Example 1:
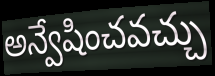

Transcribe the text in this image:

అన్వేషించవచ్చు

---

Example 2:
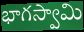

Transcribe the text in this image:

భాగస్వామి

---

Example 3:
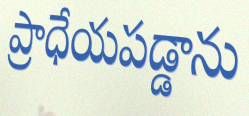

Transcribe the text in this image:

ప్రాధేయపడ్డాను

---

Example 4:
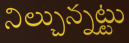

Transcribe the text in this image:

నిల్చున్నట్టు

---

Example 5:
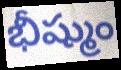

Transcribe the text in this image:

భీష్ముం